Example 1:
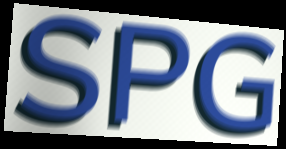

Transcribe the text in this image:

SPG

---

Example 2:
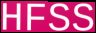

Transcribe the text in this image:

HFSS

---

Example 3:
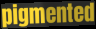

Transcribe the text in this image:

pigmented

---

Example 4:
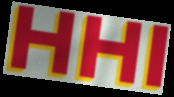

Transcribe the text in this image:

HHI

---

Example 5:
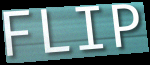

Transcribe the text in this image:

FLIP